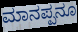
ಮಾನಪ್ಪನೂ